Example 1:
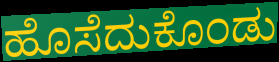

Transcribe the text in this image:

ಹೊಸೆದುಕೊಂಡು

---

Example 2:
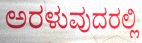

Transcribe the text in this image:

ಅರಳುವುದರಲ್ಲಿ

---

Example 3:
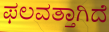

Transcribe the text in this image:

ಫಲವತ್ತಾಗಿದೆ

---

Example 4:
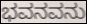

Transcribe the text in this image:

ಭವನವನು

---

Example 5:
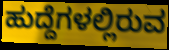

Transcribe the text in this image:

ಹುದ್ದೆಗಳಲ್ಲಿರುವ